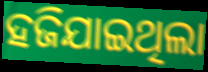
ହଜିଯାଇଥିଲା